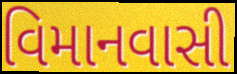
વિમાનવાસી